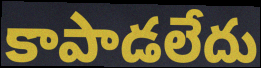
కాపాడలేదు